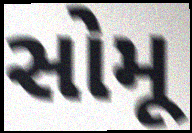
સોમૂ